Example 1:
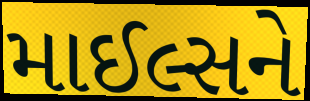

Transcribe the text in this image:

માઈલ્સને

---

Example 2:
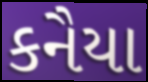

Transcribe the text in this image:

કનૈયા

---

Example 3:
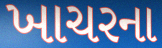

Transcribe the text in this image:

ખાચરના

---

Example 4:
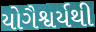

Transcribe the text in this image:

યોગૈશ્વર્યથી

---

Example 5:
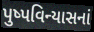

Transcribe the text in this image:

પુષ્પવિન્યાસનાં